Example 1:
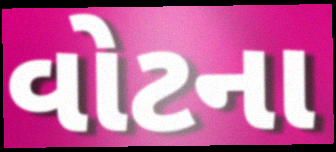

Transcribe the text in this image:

વોટના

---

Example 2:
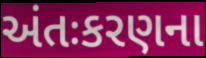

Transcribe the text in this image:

અંતઃકરણના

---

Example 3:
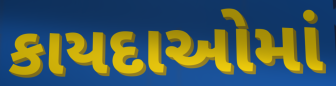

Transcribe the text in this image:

કાયદાઓમાં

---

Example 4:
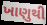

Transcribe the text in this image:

ખાણુથી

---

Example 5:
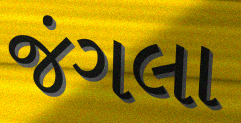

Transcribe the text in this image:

જંગલા